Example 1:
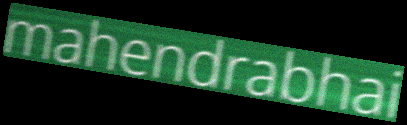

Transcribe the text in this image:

mahendrabhai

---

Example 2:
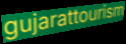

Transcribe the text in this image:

gujarattourism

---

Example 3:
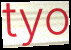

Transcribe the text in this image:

tyo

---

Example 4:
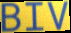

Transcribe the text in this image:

BIV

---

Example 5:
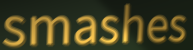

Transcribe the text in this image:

smashes